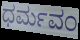
ಧರ್ಮವಂ